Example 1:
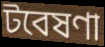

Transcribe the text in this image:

টবেষণা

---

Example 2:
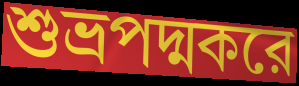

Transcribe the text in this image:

শুভ্রপদ্মকরে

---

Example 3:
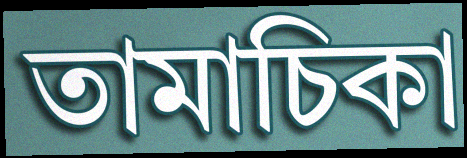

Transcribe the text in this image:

তামাচিকা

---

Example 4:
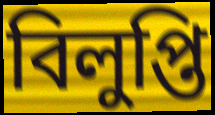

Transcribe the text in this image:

বিলুপ্তি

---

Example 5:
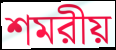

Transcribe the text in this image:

শমরীয়